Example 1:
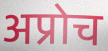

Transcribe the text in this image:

अप्रोच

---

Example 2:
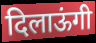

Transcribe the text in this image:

दिलाऊंगी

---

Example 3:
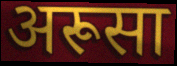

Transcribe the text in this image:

अरूसा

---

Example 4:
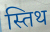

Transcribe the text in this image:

स्तिथ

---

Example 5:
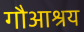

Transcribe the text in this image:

गौआश्रय